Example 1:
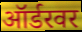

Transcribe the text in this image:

ऑर्डरवर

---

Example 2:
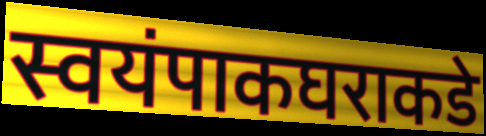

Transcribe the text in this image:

स्वयंपाकघराकडे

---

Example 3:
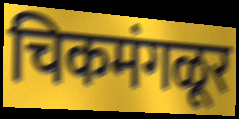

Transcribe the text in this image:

चिकमंगळूर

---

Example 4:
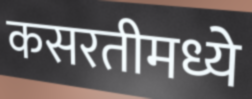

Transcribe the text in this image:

कसरतीमध्ये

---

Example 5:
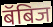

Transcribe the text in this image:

बॅबिज